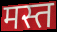
मस्त